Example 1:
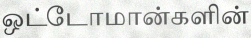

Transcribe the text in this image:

ஒட்டோமான்களின்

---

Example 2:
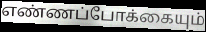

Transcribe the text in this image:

எண்ணப்போக்கையும்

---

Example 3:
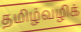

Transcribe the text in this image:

தமிழ்வழிக்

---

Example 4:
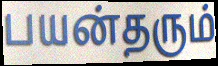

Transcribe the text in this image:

பயன்தரும்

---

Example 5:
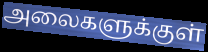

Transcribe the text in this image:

அலைகளுக்குள்